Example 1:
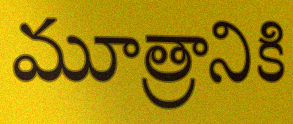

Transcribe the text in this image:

మూత్రానికి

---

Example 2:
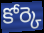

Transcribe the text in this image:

కోర్కె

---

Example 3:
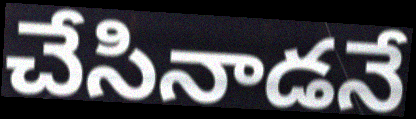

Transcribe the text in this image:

చేసినాడనే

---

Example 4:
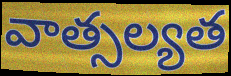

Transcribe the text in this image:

వాత్సల్యత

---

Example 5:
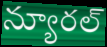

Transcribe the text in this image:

న్యూరల్